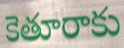
కెతూరాకు